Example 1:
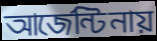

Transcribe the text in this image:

আর্জেন্টিনায়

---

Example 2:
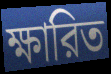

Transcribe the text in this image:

ক্ষারিত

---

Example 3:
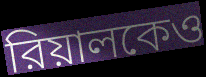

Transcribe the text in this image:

রিয়ালকেও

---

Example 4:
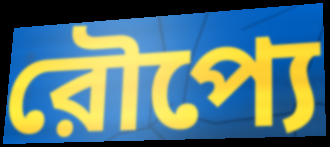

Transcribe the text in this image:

রৌপ্যে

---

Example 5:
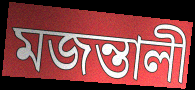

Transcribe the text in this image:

মজন্তালী